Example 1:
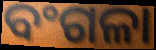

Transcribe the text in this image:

ବଂଗଳା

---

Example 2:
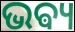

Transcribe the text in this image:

ଭଵ୍ୟ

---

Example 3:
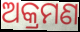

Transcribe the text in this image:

ଅକ୍ରମଣ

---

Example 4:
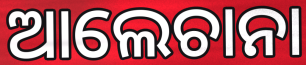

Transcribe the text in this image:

ଆଲେଚାନା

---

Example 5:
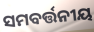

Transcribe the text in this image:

ସମବର୍ତ୍ତନୀୟ